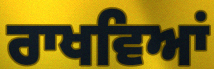
ਰਾਖਵਿਆਂ